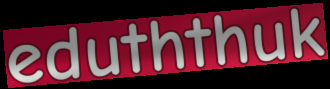
eduththuk